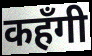
कहँगी